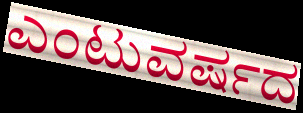
ಎಂಟುವರ್ಷದ